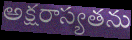
అక్షరాస్యతను